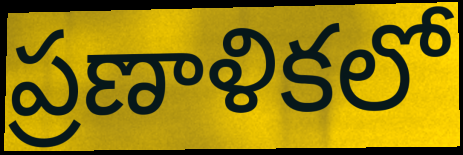
ప్రణాళికలో